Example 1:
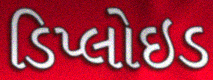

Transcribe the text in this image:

ડિપ્લોઇડ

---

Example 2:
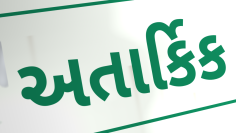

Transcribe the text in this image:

અતાર્કિક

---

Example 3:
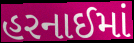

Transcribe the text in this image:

હરનાઈમાં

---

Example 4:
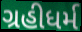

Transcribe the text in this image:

ગ્રહીધર્મ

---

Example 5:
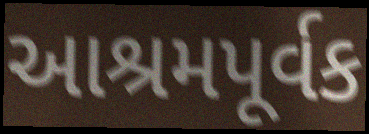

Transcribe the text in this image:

આશ્રમપૂર્વક